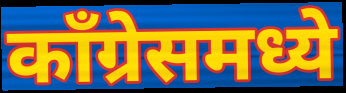
काँग्रेसमध्ये